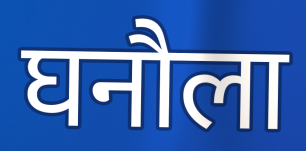
घनौला